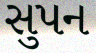
સુપન